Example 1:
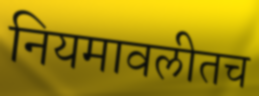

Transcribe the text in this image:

नियमावलीतच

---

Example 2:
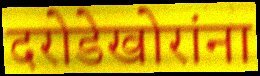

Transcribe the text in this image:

दरोडेखोरांना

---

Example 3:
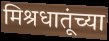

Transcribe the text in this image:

मिश्रधातूंच्या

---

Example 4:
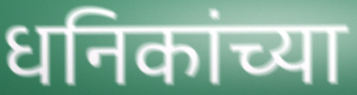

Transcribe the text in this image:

धनिकांच्या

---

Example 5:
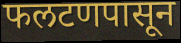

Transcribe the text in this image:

फलटणपासून